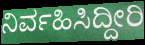
ನಿರ್ವಹಿಸಿದ್ದೀರಿ